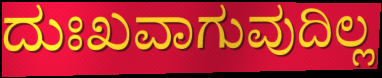
ದುಃಖವಾಗುವುದಿಲ್ಲ